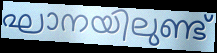
ഘാനയിലുണ്ട്